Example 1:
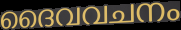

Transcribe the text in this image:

ദൈവവചനം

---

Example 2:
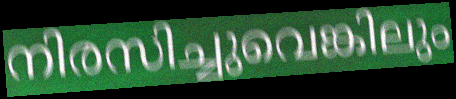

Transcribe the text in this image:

നിരസിച്ചുവെങ്കിലും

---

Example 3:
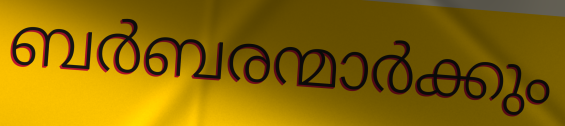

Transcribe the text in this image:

ബർബരന്മാർക്കും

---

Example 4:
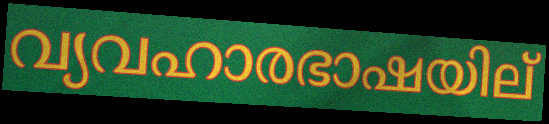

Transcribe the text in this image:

വ്യവഹാരഭാഷയില്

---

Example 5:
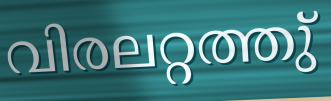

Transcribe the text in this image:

വിരലറ്റത്തു്